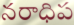
నరాధిప